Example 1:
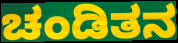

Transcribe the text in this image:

ಚಂಡಿತನ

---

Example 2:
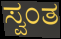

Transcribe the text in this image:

ಸ್ವಂತ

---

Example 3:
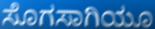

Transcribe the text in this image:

ಸೊಗಸಾಗಿಯೂ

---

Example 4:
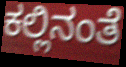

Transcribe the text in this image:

ಕಲ್ಲಿನಂತೆ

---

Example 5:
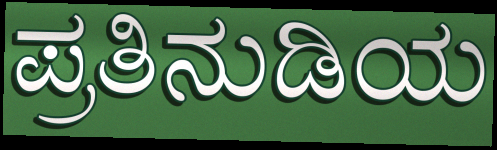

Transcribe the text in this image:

ಪ್ರತಿನುಡಿಯ